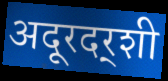
अदूरदर्शी